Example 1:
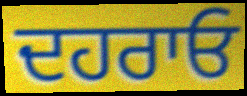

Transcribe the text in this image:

ਦਹਰਾਓ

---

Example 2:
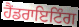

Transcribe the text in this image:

ਹੈਂਡਰਾਇਟਿੰਗ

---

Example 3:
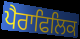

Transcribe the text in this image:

ਪੈਰਾਫਿਲਿਕ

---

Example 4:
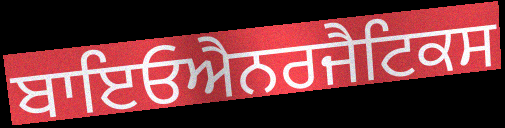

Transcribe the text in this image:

ਬਾਇਓਐਨਰਜੈਟਿਕਸ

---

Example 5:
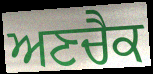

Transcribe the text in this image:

ਅਣਚੈਕ